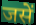
जसें